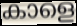
കാളെ